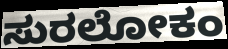
ಸುರಲೋಕಂ